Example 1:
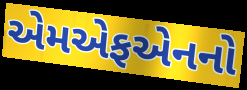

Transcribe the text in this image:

એમએફએનનો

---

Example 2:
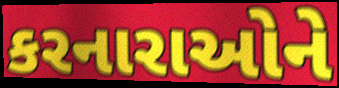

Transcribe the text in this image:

કરનારાઓને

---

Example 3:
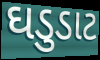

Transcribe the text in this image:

ઘડુડાટ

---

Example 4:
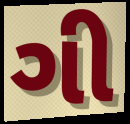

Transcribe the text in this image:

ગી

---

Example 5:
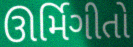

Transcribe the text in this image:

ઊર્મિગીતો